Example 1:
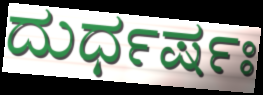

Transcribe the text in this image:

ದುರ್ಧರ್ಷಃ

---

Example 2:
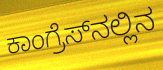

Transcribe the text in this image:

ಕಾಂಗ್ರೆಸ್‌ನಲ್ಲಿನ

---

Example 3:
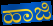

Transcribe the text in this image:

ಹಾಜಿ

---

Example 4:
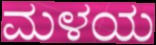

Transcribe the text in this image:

ಮಳಯ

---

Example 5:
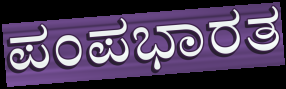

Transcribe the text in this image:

ಪಂಪಭಾರತ